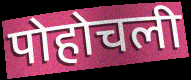
पोहोचली